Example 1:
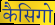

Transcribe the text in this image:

कैसिगो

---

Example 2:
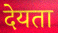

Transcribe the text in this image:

देयता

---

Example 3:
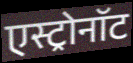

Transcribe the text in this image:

एस्ट्रोनॉट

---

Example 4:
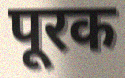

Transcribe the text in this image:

पूरक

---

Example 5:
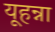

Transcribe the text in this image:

यूहन्ना